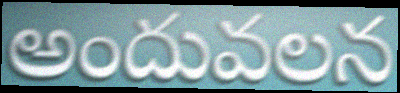
అందువలన